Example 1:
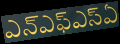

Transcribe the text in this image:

ఎన్ఎఫ్ఎస్ఏ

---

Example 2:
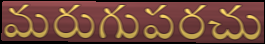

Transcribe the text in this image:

మరుగుపరచు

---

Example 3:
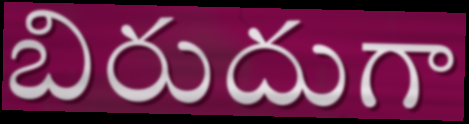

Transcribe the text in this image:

బిరుదుగా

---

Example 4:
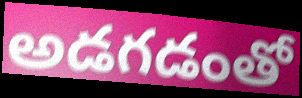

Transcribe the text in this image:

అడగడంతో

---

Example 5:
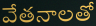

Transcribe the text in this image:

వేతనాలతో